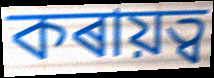
কৰায়ত্ব